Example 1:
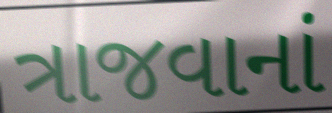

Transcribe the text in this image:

ત્રાજવાનાં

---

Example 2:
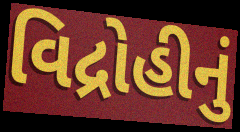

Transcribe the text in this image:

વિદ્રોહીનું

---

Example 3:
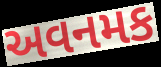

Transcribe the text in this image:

અવનમક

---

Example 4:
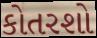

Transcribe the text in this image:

કોતરશો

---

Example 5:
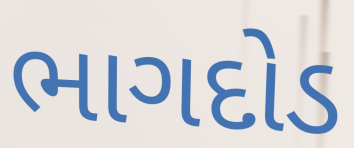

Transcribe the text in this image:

ભાગદોડ